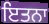
ਇਤਨਾ